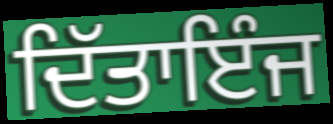
ਦਿੱਤਾਇੰਜ